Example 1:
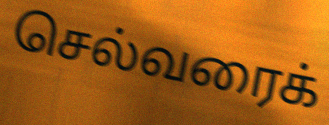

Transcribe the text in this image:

செல்வரைக்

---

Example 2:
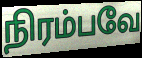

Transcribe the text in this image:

நிரம்பவே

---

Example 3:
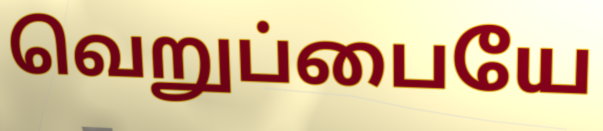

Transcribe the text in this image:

வெறுப்பையே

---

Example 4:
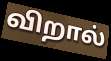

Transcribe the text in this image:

விறால்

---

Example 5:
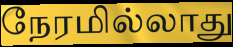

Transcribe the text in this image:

நேரமில்லாது